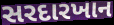
સરદારખાન